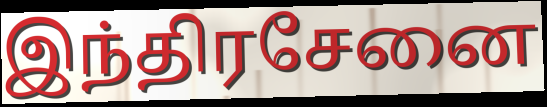
இந்திரசேனை